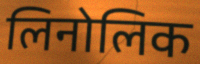
लिनोलिक